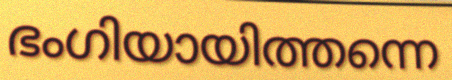
ഭംഗിയായിത്തന്നെ